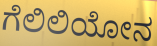
ಗೆಲಿಲಿಯೋನ